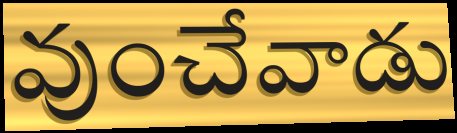
వుంచేవాడు